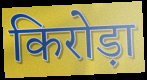
किरोड़ा